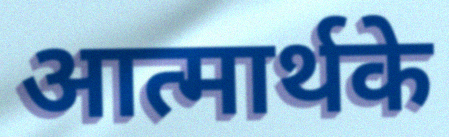
आत्मार्थके